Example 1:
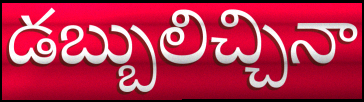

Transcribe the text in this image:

డబ్బులిచ్చినా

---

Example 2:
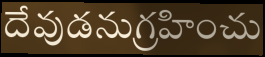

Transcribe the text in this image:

దేవుడనుగ్రహించు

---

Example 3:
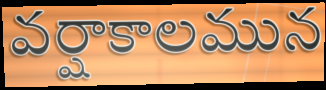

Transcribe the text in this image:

వర్షాకాలమున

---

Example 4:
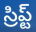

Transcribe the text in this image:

స్రిప్ట్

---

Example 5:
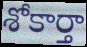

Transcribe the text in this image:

శోకార్తా